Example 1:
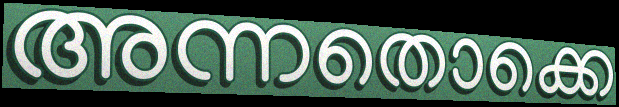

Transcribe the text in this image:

അന്നതൊക്കെ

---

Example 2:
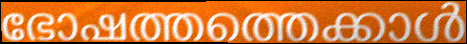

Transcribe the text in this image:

ഭോഷത്തത്തെക്കാൾ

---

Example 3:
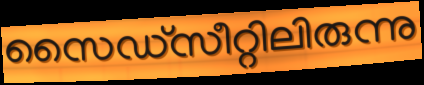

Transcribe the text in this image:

സൈഡ്സീറ്റിലിരുന്നു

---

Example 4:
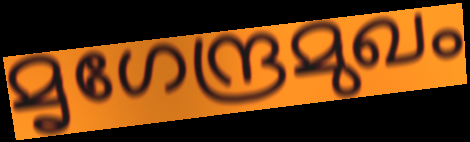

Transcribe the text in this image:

മൃഗേന്ദ്രമുഖം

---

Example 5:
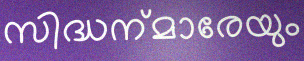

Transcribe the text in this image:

സിദ്ധന്‌മാരേയും